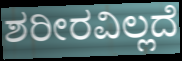
ಶರೀರವಿಲ್ಲದೆ